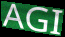
AGI